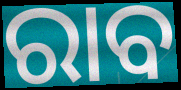
ରାବ